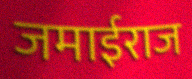
जमाईराज